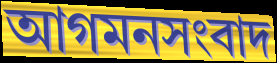
আগমনসংবাদ